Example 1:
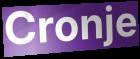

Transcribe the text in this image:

Cronje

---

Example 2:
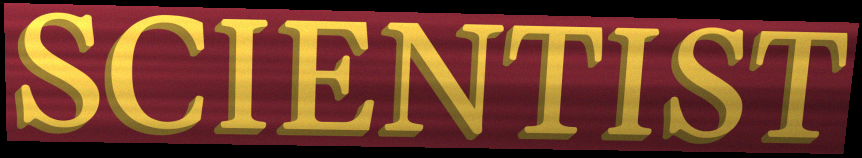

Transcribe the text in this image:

SCIENTIST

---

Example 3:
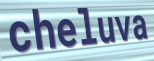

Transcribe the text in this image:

cheluva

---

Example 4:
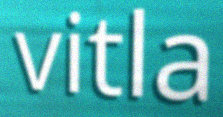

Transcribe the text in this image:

vitla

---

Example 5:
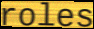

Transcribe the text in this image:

roles